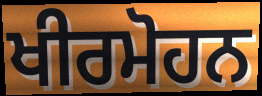
ਖੀਰਮੋਹਨ